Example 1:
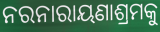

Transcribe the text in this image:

ନରନାରାୟଣାଶ୍ରମକୁ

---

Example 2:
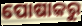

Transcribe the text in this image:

ପୋଷାକରୁ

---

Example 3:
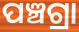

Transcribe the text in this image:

ପଞ୍ଚଗ୍ରା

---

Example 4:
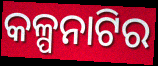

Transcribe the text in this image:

କଳ୍ପନାଟିର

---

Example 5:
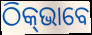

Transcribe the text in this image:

ଠିକ୍‍ଭାବେ